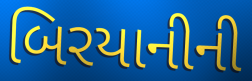
બિરયાનીની